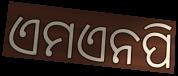
ଏମଏନପି